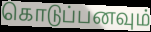
கொடுப்பனவும்